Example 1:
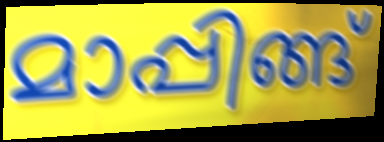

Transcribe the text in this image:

മാപ്പിങ്ങ്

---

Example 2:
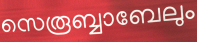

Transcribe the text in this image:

സെരൂബ്ബാബേലും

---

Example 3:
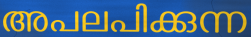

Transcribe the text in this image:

അപലപിക്കുന്ന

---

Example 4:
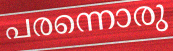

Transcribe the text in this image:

പരന്നൊരു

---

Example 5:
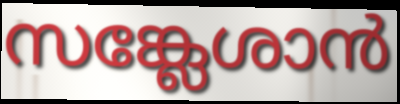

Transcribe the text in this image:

സങ്ക്ലേശാൻ